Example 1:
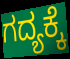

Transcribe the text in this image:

ಗದ್ಯಕ್ಕೆ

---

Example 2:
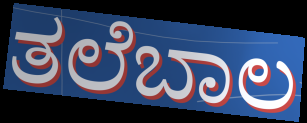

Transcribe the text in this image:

ತಲೆಬಾಲ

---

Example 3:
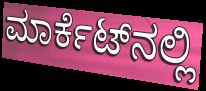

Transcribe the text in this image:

ಮಾರ್ಕೆಟ್‍ನಲ್ಲಿ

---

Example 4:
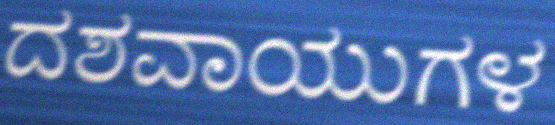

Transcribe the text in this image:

ದಶವಾಯುಗಳ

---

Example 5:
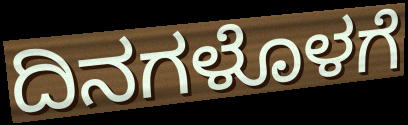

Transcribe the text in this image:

ದಿನಗಳೊಳಗೆ